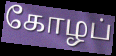
கோழப்